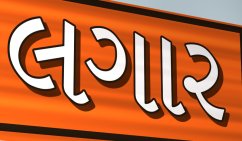
લગાર